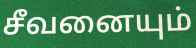
சீவனையும்